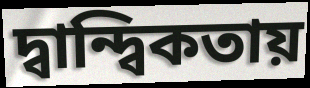
দ্বান্দ্বিকতায়